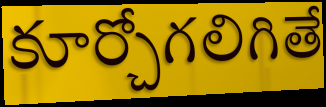
కూర్చోగలిగితే